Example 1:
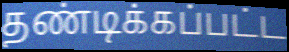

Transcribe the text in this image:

தண்டிக்கப்பட்ட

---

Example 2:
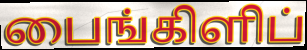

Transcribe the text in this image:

பைங்கிளிப்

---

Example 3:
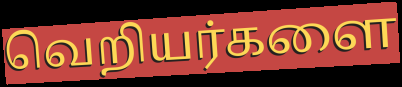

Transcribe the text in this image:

வெறியர்களை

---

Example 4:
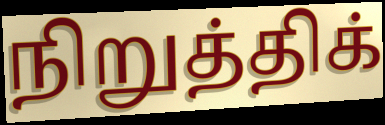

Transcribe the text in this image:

நிறுத்திக்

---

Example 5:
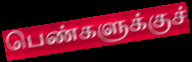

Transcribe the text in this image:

பெண்களுக்குச்